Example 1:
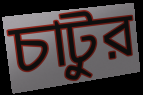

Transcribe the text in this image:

চাটুর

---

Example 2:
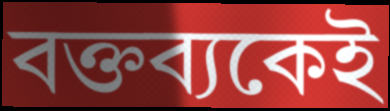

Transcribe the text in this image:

বক্তব্যকেই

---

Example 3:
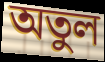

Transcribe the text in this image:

অতুল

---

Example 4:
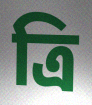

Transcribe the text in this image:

ত্রি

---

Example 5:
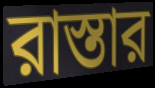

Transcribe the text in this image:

রাস্তার